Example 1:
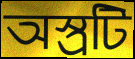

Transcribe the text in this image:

অস্ত্রটি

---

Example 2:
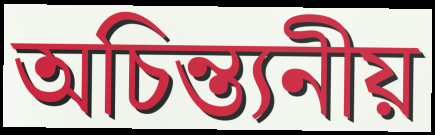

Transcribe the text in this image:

অচিন্ত্যনীয়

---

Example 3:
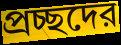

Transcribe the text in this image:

প্রচ্ছদের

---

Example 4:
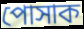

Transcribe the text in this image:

পোসাক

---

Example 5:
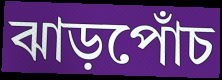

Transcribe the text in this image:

ঝাড়পোঁচ